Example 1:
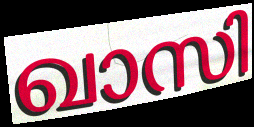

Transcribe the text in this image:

ഖാസി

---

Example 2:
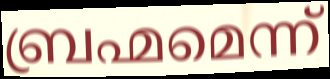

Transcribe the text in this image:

ബ്രഹ്മമെന്ന്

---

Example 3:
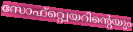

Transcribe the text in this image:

സോഫ്റ്റ്വെയറിന്റെയും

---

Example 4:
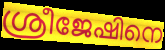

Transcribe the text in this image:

ശ്രീജേഷിനെ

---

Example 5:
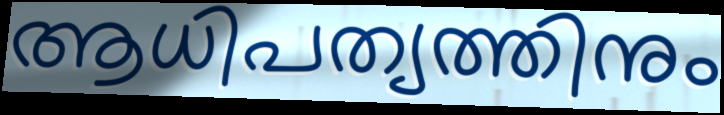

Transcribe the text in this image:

ആധിപത്യത്തിനും